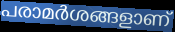
പരാമർശങ്ങളാണ്